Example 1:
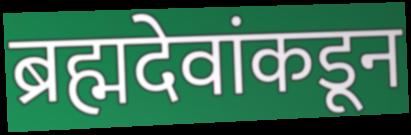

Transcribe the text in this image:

ब्रह्मदेवांकडून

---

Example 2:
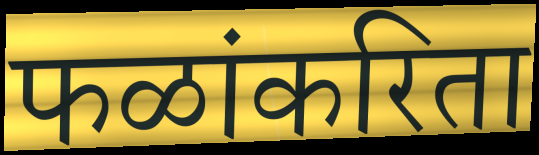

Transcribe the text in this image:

फळांकरिता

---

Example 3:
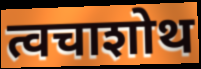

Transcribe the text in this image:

त्वचाशोथ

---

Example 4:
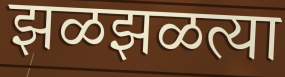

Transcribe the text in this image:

झळझळत्या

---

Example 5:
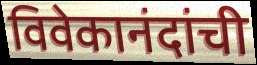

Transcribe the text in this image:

विवेकानंदांची